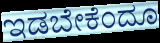
ಇಡಬೇಕೆಂದೂ